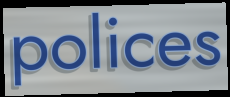
polices